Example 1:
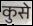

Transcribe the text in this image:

कुसे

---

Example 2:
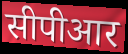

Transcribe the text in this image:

सीपीआर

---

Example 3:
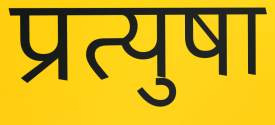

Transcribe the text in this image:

प्रत्युषा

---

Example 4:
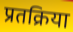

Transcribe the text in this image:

प्रतक्रिया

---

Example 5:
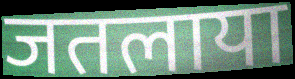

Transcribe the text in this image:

जतलाया